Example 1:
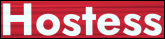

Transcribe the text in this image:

Hostess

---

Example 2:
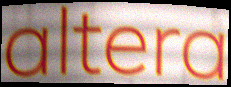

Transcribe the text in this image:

altera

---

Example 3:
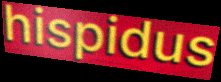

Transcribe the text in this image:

hispidus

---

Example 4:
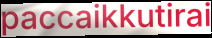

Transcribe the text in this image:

paccaikkutirai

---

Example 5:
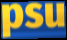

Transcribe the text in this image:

psu